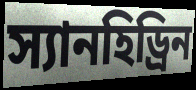
স্যানহিড্রিন